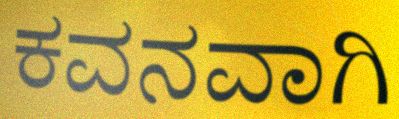
ಕವನವಾಗಿ